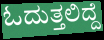
ಓದುತ್ತಲಿದ್ದೆ